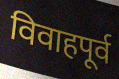
विवाहपूर्व